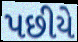
પછીયે